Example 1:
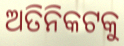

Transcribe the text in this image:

ଅତିନିକଟକୁ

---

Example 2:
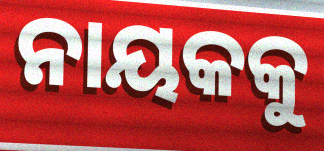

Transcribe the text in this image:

ନାୟକକୁ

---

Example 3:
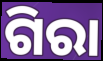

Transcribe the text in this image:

ଗିରା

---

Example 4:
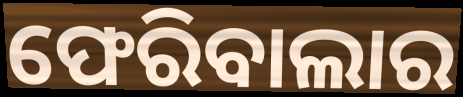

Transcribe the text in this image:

ଫେରିବାଲାର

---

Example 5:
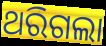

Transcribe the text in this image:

ଥରିଗଲା